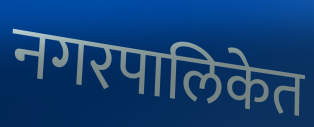
नगरपालिकेत